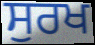
ਸੁਰਖ